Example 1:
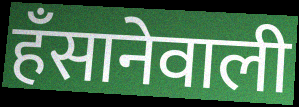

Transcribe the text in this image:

हँसानेवाली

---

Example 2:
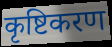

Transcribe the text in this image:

कृष्टिकरण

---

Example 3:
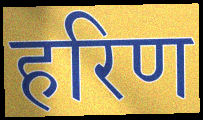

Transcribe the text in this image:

हरिण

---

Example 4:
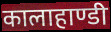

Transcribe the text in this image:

कालाहाण्डी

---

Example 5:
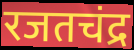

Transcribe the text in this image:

रजतचंद्र